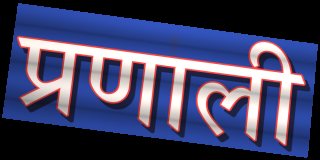
प्रणाली